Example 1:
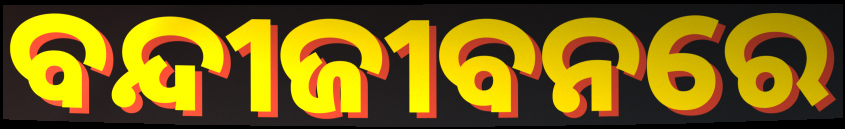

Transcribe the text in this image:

ବନ୍ଦୀଜୀବନରେ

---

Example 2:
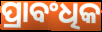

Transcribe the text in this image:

ପ୍ରାବଂଧିକ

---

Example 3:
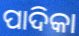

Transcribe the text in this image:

ପାଦିକା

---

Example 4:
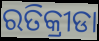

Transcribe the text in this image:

ରତିକ୍ରୀଡା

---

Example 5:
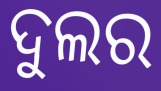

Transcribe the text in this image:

ଦୁଲର